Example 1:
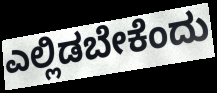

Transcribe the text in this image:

ಎಲ್ಲಿಡಬೇಕೆಂದು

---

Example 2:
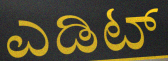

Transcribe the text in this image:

ಎಡಿಟ್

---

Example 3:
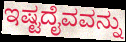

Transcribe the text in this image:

ಇಷ್ಟದೈವವನ್ನು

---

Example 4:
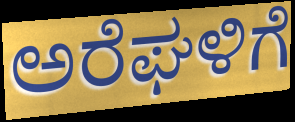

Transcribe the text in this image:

ಅರೆಘಳಿಗೆ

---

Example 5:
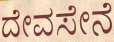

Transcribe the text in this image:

ದೇವಸೇನೆ